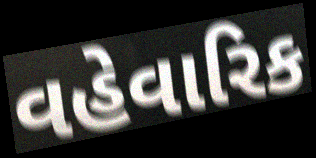
વહેવારિક